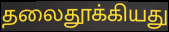
தலைதூக்கியது